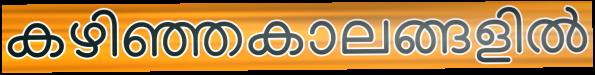
കഴിഞ്ഞകാലങ്ങളിൽ